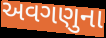
અવગણુના